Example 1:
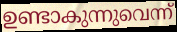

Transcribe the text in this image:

ഉണ്ടാകുന്നുവെന്ന്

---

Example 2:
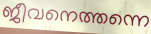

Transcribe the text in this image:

ജീവനെത്തന്നെ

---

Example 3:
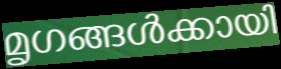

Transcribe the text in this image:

മൃഗങ്ങൾക്കായി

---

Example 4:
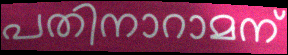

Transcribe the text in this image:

പതിനാറാമന്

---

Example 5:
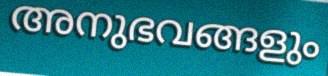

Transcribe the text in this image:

അനുഭവങ്ങളും